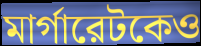
মার্গারেটকেও